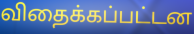
விதைக்கப்பட்டன